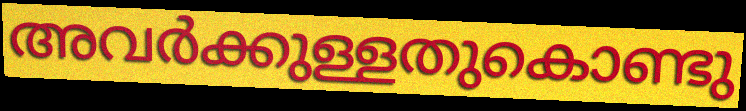
അവർക്കുള്ളതുകൊണ്ടു